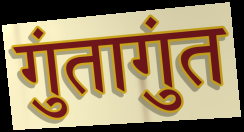
गुंतागुंत